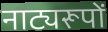
नाट्यरूपों